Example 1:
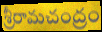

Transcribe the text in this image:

శ్రీరామచంద్రం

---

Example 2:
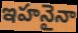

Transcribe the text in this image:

ఇహనైనా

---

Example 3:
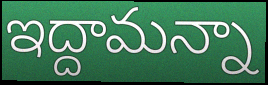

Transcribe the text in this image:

ఇద్దామన్నా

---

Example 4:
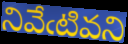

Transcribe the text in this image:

నివేఁటివని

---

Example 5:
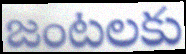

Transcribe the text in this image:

జంటలకు